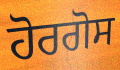
ਹੋਰਗੋਸ